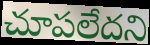
చూపలేదని